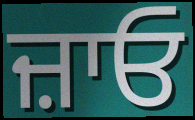
ਜ਼ਾਓ